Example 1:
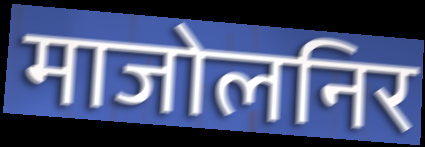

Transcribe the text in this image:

माजोलनिर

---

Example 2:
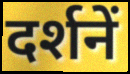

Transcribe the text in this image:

दर्शनें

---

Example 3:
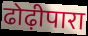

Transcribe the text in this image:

ढोढ़ीपारा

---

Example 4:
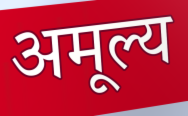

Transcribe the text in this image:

अमूल्य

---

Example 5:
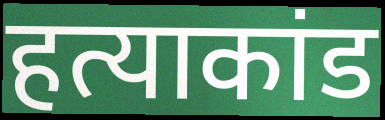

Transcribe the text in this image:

हत्याकांड